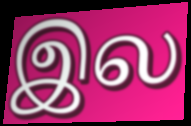
இல